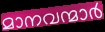
മാനവന്മാർ